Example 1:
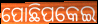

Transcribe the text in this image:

ପୋଛିପକେଇ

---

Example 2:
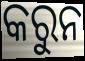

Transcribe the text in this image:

କରୁନ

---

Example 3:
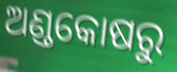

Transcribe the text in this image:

ଅଣ୍ଡକୋଷରୁ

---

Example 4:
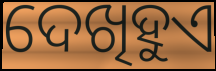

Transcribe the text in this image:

ଦେଖିହୁଏ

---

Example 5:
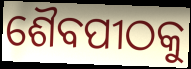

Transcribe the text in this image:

ଶୈବପୀଠକୁ